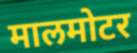
मालमोटर